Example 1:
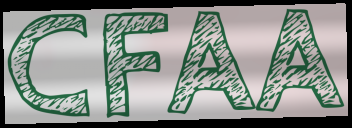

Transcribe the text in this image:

CFAA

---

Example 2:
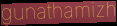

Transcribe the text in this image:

gunathamizh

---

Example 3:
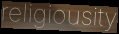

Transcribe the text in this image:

religiousity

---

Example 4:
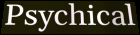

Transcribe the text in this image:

Psychical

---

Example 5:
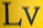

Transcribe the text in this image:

Lv